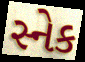
સ્નેક